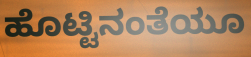
ಹೊಟ್ಟಿನಂತೆಯೂ